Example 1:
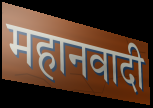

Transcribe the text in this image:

महानवादी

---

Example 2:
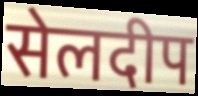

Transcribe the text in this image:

सेलदीप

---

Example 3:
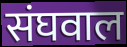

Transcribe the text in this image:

संघवाल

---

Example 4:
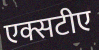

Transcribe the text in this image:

एक्सटीए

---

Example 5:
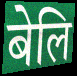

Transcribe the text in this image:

बेलि